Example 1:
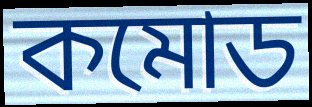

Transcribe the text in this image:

কমোড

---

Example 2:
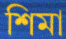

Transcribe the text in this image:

শিমা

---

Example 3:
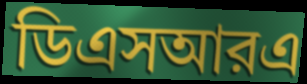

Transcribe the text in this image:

ডিএসআরএ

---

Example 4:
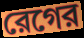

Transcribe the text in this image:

রেগের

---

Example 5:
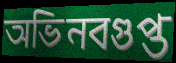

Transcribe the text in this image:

অভিনবগুপ্ত